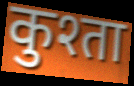
कुश्ता